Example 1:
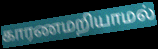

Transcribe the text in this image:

காரணமறியாமல்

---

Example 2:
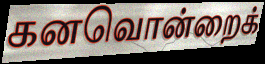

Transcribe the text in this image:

கனவொன்றைக்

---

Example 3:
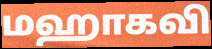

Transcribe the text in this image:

மஹாகவி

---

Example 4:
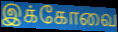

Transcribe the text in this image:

இக்கோவை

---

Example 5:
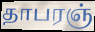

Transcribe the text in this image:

தாபரஞ்